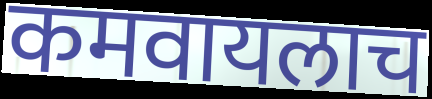
कमवायलाच